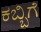
ಕಬ್ಬಿಗೆ